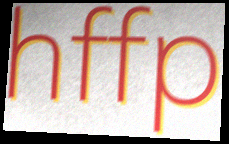
hffp